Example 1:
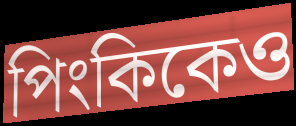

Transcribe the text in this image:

পিংকিকেও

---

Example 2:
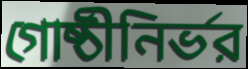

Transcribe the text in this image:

গোষ্ঠীনির্ভর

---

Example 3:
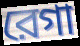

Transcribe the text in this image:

রেগা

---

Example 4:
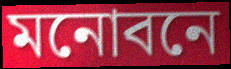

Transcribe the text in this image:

মনোবনে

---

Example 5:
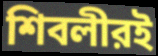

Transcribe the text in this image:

শিবলীরই